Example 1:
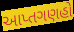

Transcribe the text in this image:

આપ્તગણહો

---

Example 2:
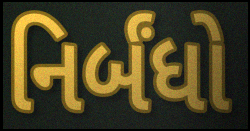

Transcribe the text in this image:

નિર્બંધો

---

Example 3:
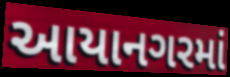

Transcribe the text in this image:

આયાનગરમાં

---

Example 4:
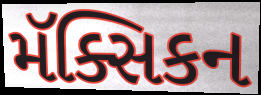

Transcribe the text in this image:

મૅક્સિકન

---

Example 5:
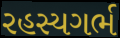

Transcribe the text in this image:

રહસ્યગર્ભ